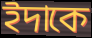
ইদাকে